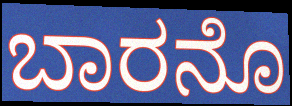
ಬಾರನೊ